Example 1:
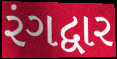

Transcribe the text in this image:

રંગદ્વાર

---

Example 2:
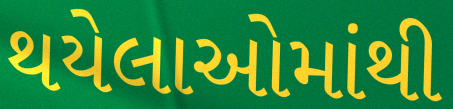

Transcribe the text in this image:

થયેલાઓમાંથી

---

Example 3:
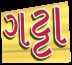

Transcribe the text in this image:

ગટ્ટા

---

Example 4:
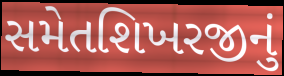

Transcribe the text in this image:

સમેતશિખરજીનું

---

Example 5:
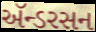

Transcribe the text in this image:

ઍન્ડરસન